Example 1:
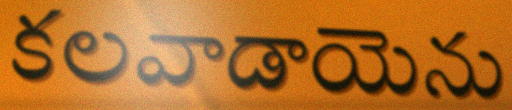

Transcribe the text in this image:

కలవాడాయెను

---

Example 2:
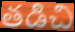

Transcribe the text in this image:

తడిచి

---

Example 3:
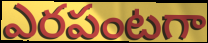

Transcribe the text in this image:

ఎరపంటగా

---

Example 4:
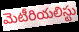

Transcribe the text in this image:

మెటీరియలిస్టు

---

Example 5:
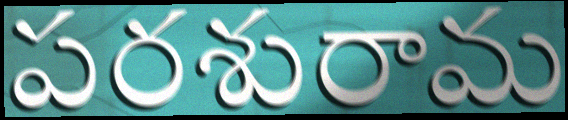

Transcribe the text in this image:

పరశురామ